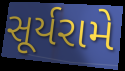
સૂર્યરામે